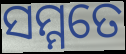
ସମ୍ମତେ